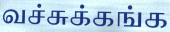
வச்சுக்கங்க